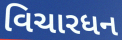
વિચારધન